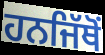
ਹਨਜਿੱਥੋਂ